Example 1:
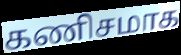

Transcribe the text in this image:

கணிசமாக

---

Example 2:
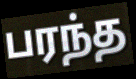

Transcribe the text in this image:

பரந்த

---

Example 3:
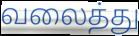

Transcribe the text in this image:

வலைத்து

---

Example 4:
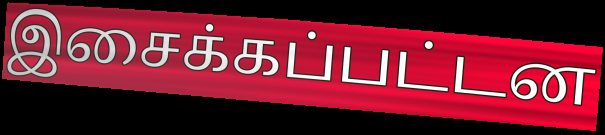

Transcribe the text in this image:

இசைக்கப்பட்டன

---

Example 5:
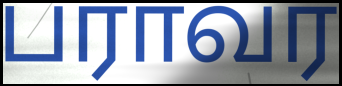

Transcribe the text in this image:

பராவர